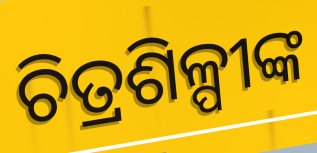
ଚିତ୍ରଶିଳ୍ପୀଙ୍କ